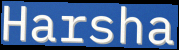
Harsha